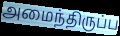
அமைந்திருப்ப